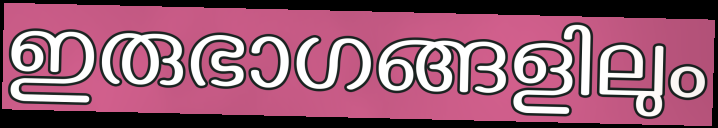
ഇരുഭാഗങ്ങളിലും